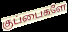
குப்பைகளே